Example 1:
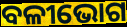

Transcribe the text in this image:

ବଳୀଭୋଗ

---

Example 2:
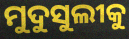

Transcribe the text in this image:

ମୁଦୁସୁଲୀକୁ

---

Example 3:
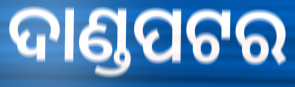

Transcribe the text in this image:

ଦାଣ୍ଡପଟର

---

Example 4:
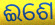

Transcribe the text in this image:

ଈଶେ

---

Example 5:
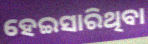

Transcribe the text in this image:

ହେଇସାରିଥିବା